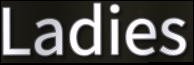
Ladies